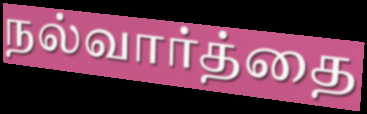
நல்வார்த்தை